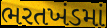
ભરતખંડમાં